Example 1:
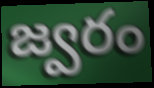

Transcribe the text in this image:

జ్వరం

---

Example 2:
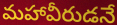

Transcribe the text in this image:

మహావీరుడనే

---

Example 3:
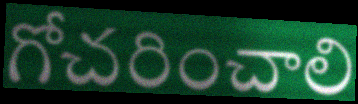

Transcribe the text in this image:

గోచరించాలి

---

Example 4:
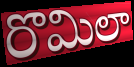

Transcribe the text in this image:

రొమిలా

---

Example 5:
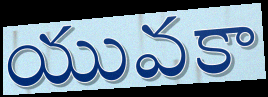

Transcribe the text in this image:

యువకా